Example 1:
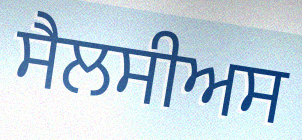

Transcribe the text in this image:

ਸੈਲਸੀਅਸ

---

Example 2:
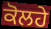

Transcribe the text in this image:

ਕੋਲਹੇ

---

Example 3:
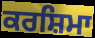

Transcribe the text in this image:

ਕਰਸ਼ਿਮਾ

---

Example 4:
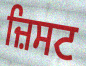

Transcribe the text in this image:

ਜ਼ਿਸਟ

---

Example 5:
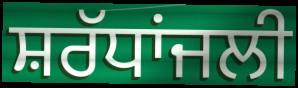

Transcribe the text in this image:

ਸ਼ਰੱਧਾਂਜਲੀ